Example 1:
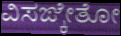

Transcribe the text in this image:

ವಿಸಙ್ಕೇತೋ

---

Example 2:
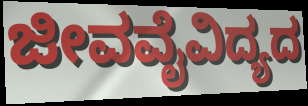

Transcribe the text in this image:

ಜೀವವೈವಿದ್ಯದ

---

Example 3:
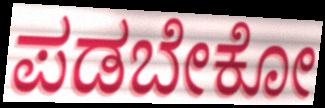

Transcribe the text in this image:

ಪಡಬೇಕೋ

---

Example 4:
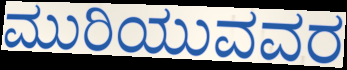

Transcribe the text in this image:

ಮುರಿಯುವವರ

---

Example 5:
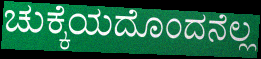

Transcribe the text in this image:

ಚುಕ್ಕೆಯದೊಂದನೆಲ್ಲ